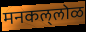
मनकल्लोळ